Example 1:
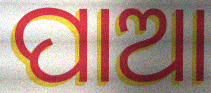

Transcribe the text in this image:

ପାଆ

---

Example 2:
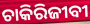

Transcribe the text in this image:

ଚାକିରିଜୀବୀ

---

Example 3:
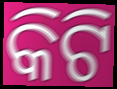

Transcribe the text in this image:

କିଟି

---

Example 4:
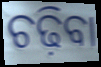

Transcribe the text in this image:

ଚଢ଼ିବା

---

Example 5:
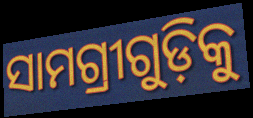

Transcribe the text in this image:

ସାମଗ୍ରୀଗୁଡ଼ିକୁ